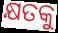
କ୍ଷତକୁ